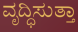
ವೃದ್ಧಿಸುತ್ತಾ